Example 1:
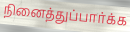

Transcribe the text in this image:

நினைத்துப்பார்க்க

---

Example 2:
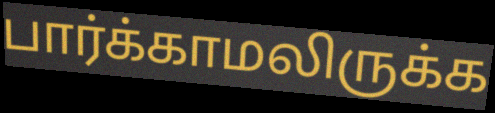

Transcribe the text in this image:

பார்க்காமலிருக்க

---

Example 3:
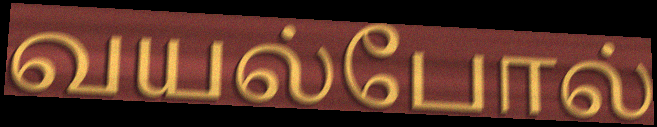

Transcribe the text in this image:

வயல்போல்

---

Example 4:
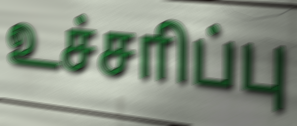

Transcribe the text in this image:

உச்சரிப்பு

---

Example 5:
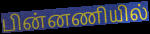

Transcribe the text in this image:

பின்னணியில்